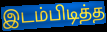
இடம்பிடித்த